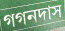
গগনদাস